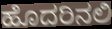
ಹೊದರಿನಲಿ